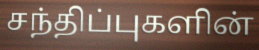
சந்திப்புகளின்